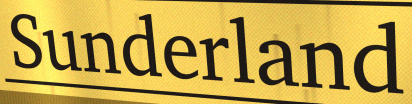
Sunderland